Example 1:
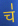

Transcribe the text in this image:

च॑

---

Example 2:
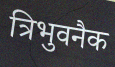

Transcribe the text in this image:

त्रिभुवनैक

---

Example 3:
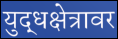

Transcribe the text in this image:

युद्धक्षेत्रावर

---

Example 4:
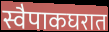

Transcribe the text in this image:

स्वैपाकघरात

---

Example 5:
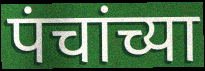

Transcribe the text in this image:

पंचांच्या